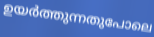
ഉയർത്തുന്നതുപോലെ